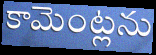
కామెంట్లను